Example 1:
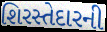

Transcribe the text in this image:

શિરસ્તેદારની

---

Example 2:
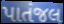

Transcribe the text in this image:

પાતંજલ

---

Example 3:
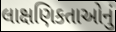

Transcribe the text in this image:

લાક્ષણિકતાઓનું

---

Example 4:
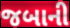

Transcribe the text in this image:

જબાની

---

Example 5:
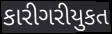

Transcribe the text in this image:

કારીગરીયુકત